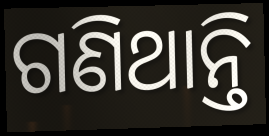
ଗଣିଥାନ୍ତି